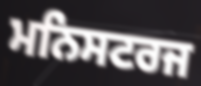
ਮਨਿਸਟਰਜ